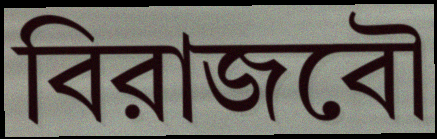
বিরাজবৌ